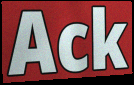
Ack